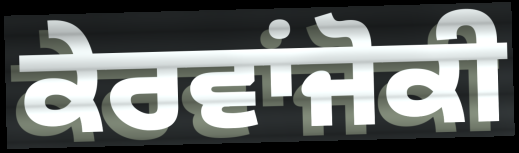
ਕੇਰਵਾਂਜੋਕੀ